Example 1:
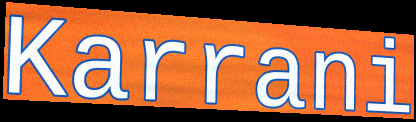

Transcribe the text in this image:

Karrani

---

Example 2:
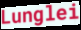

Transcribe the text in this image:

Lunglei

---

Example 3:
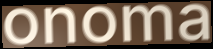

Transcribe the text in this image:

onoma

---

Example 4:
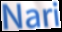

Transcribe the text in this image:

Nari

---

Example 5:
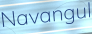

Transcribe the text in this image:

Navangul